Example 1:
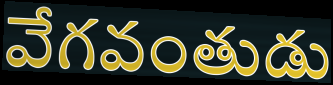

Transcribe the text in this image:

వేగవంతుడు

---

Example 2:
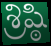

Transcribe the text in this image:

శ్రిష్ఠి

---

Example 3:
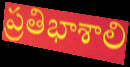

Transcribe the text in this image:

ప్రతిభాశాలి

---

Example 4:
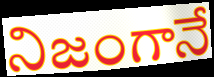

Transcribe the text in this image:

నిజంగానే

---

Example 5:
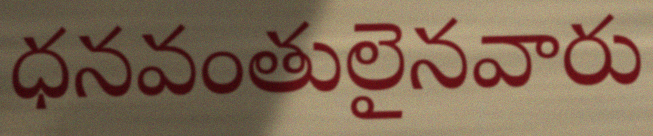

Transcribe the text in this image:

ధనవంతులైనవారు